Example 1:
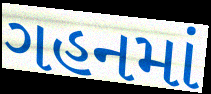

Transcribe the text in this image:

ગહનમાં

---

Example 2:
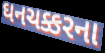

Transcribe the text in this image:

ઘનચક્કરના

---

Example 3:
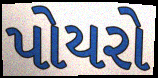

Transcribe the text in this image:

પોયરો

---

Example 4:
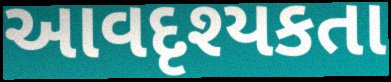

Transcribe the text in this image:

આવદૃશ્યકતા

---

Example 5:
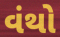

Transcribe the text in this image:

વંથો